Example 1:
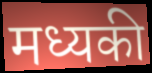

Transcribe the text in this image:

मध्यकी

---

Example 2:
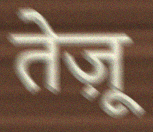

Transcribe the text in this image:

तेज़ू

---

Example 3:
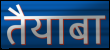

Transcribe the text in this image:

तैयाबा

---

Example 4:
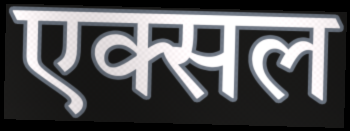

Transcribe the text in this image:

एक्सल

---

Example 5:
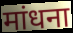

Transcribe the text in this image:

मांधना